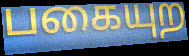
பகையுற